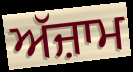
ਅੱਜ਼ਾਮ